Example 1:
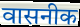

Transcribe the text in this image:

वासनीक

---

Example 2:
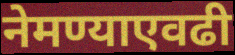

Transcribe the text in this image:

नेमण्याएवढी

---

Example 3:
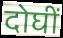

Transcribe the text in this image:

दोघीं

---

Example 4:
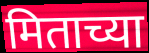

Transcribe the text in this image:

मिताच्या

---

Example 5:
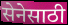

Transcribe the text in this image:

सेनेसाठी